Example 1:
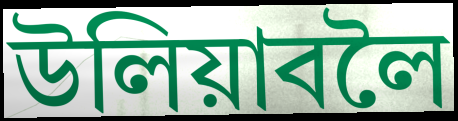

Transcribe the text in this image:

উলিয়াবলৈ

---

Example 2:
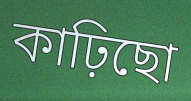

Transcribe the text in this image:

কাঢ়িছো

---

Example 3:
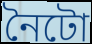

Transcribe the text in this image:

নৈটো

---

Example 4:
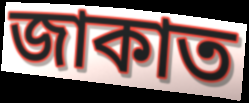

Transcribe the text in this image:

জাকাত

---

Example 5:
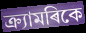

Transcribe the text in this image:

ক্ৰ্যামৰিকে